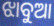
ଝାବୁଆ